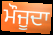
ਮੌਜੂਦਾ